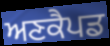
ਅਣਕੈਪਡ